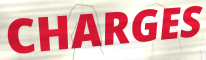
CHARGES